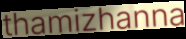
thamizhanna